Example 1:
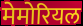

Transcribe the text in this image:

मेमोरियल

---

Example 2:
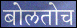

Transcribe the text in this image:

बोलतोच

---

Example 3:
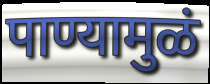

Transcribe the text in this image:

पाण्यामुळं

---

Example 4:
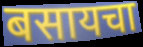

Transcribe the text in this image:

बसायचा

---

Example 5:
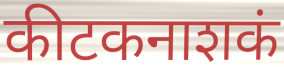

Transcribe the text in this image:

कीटकनाशकं